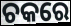
ଚକରେ